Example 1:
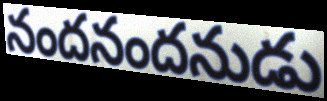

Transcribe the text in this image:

నందనందనుడు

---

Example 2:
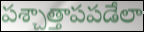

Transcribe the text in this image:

పశ్చాత్తాపపడేలా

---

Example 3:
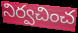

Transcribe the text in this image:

నిర్వచించ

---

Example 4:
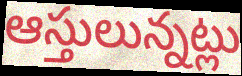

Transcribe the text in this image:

ఆస్తులున్నట్లు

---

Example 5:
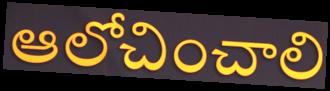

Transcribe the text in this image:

ఆలోచించాలి